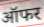
ऑफर